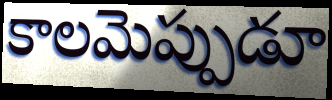
కాలమెప్పుడూ